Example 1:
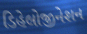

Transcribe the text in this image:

ડિહેલોજીનેશન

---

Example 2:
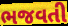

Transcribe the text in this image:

ભજવતી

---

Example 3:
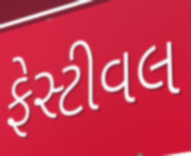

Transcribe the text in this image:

ફેસ્ટીવલ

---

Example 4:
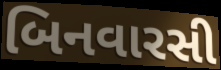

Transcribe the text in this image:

બિનવારસી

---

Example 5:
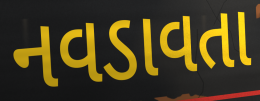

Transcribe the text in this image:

નવડાવતા